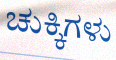
ಚುಕ್ಕಿಗಳು